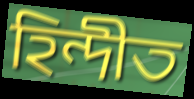
হিন্দীত